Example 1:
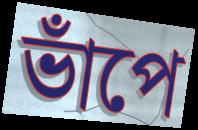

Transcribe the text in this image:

ভাঁপে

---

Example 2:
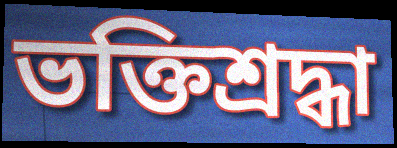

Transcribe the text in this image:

ভক্তিশ্রদ্ধা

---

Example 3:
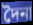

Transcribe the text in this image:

দৈনা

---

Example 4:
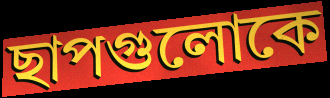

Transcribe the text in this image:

ছাপগুলোকে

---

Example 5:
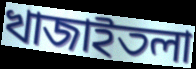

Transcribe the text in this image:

খাজাইতলা